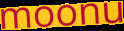
moonu